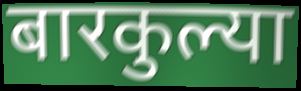
बारकुल्या